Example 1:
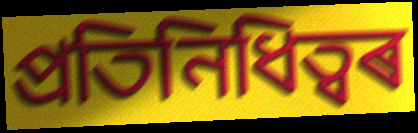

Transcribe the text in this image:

প্ৰতিনিধিত্বৰ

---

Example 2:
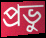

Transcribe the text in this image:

প্ৰভু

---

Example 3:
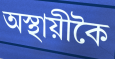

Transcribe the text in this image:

অস্থায়ীকৈ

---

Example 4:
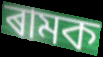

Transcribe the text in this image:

ৰামক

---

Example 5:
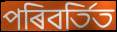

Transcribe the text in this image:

পৰিবৰ্তিত